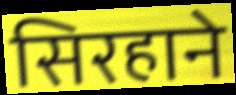
सिरहाने